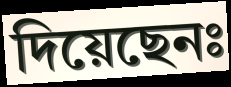
দিয়েছেনঃ